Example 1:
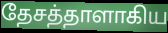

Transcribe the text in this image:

தேசத்தாளாகிய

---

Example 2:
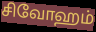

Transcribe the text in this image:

சிவோஹம்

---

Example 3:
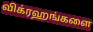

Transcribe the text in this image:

விக்ரஹங்களை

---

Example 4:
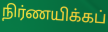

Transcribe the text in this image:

நிர்ணயிக்கப்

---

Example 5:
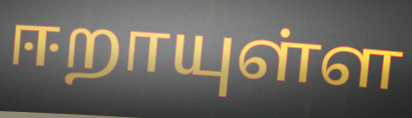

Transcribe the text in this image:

ஈறாயுள்ள